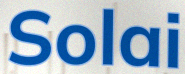
Solai